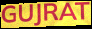
GUJRAT